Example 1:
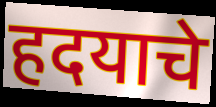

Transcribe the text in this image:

हदयाचे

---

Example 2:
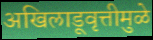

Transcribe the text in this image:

अखिलाडूवृत्तीमुळे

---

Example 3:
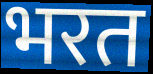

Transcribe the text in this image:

भरत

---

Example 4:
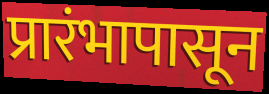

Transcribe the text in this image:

प्रारंभापासून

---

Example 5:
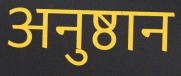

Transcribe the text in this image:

अनुष्ठान